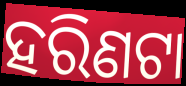
ହରିଣଟା